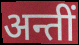
अन्तीं